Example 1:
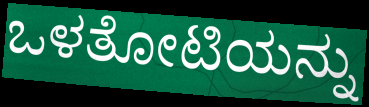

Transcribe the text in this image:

ಒಳತೋಟಿಯನ್ನು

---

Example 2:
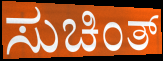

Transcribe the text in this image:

ಸುಚಿಂತ್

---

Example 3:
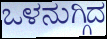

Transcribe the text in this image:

ಒಳನುಗ್ಗಿದ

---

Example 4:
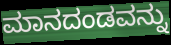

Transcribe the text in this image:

ಮಾನದಂಡವನ್ನು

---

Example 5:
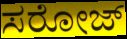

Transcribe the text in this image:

ಸರೋಜ್